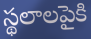
స్థలాలపైకి